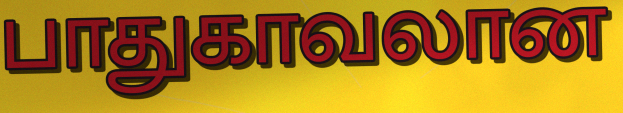
பாதுகாவலான